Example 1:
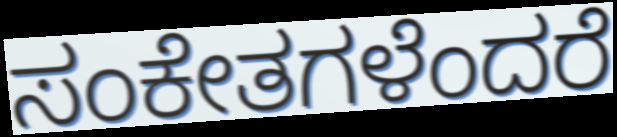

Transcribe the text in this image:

ಸಂಕೇತಗಳೆಂದರೆ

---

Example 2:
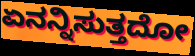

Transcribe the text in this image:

ಏನನ್ನಿಸುತ್ತದೋ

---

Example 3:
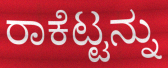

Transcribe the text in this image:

ರಾಕೆಟ್ಟನ್ನು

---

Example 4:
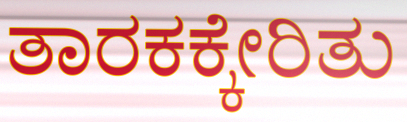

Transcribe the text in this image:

ತಾರಕಕ್ಕೇರಿತು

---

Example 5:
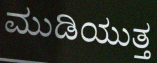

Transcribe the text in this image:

ಮುಡಿಯುತ್ತ